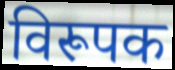
विरूपक